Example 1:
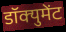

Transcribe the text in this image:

डॉक्युमेंट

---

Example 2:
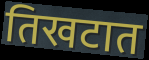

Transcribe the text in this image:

तिखटात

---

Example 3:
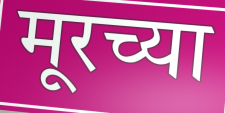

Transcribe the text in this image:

मूरच्या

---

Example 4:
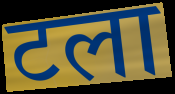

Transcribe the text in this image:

टला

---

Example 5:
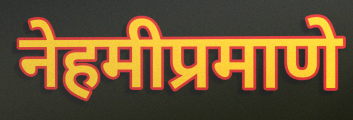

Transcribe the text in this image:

नेहमीप्रमाणे